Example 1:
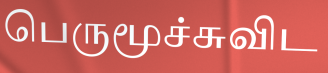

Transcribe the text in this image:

பெருமூச்சுவிட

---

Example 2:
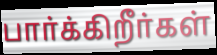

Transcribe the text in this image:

பார்க்கிறீர்கள்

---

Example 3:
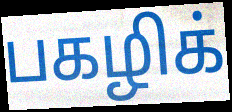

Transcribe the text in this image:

பகழிக்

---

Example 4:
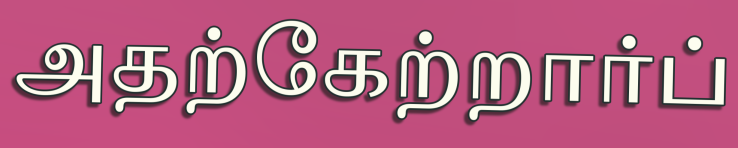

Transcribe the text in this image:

அதற்கேற்றார்ப்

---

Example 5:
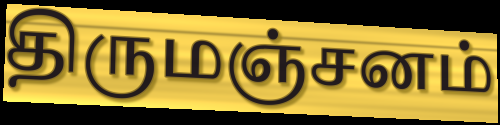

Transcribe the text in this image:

திருமஞ்சனம்